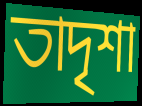
তাদৃশা